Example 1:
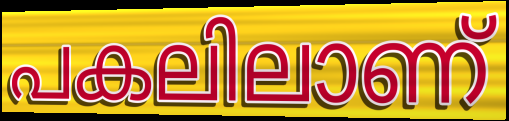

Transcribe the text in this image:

പകലിലാണ്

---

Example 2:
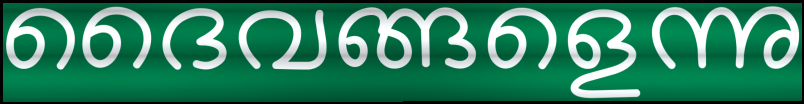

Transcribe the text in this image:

ദൈവങ്ങളെന്നു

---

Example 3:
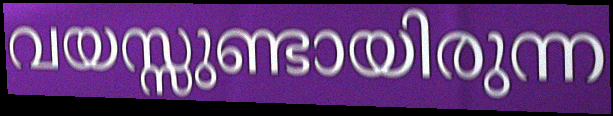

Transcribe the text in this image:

വയസ്സുണ്ടായിരുന്ന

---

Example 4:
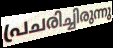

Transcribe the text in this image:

പ്രചരിച്ചിരുന്നു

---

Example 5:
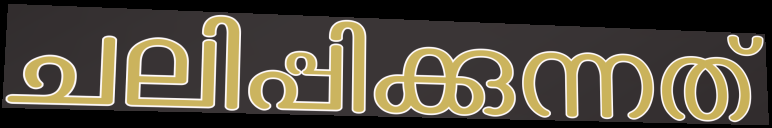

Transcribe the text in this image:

ചലിപ്പിക്കുന്നത്